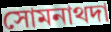
সোমনাথদা